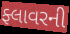
ફ્લાવરની